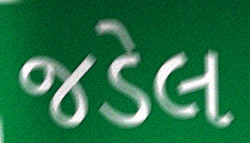
જડેલ